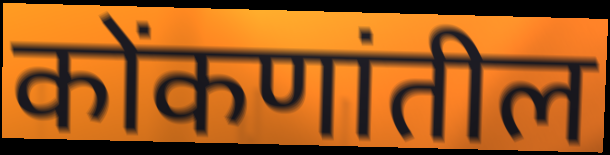
कोंकणांतील